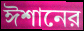
ঈশানের